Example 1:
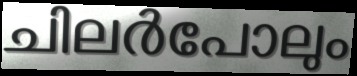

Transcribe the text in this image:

ചിലർപോലും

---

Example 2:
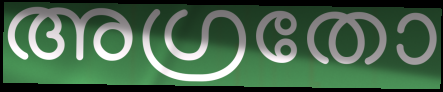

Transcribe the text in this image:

അഗ്രതോ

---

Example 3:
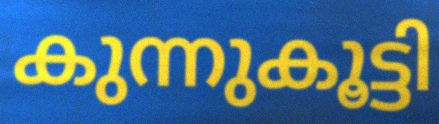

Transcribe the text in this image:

കുന്നുകൂട്ടി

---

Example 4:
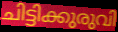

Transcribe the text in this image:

ചിട്ടിക്കുരുവി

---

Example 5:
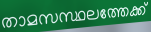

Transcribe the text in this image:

താമസസ്ഥലത്തേക്ക്